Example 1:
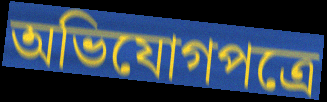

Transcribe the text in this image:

অভিযোগপত্রে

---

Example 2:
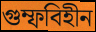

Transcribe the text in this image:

গুম্ফবিহীন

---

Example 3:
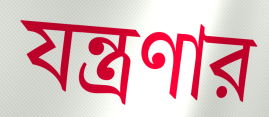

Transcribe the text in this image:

যন্ত্রণার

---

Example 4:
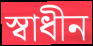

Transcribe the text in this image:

স্বাধীন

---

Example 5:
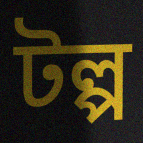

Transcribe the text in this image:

টল্প